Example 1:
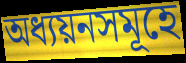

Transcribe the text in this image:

অধ্যয়নসমূহে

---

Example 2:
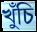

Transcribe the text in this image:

খুঁচি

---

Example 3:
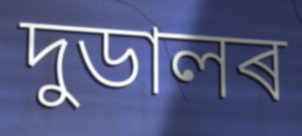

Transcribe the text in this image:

দুডালৰ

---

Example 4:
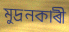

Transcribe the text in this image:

মুদ্ৰনকাৰী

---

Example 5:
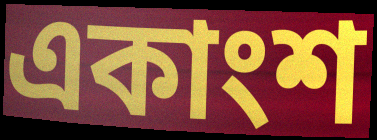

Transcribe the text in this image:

একাংশ